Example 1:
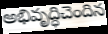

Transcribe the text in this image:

అభివృద్ధిచెందిన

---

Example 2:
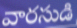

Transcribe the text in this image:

వారసుడి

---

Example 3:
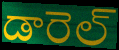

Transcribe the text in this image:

డారెల్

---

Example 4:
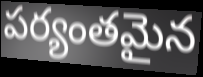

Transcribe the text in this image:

పర్యంతమైన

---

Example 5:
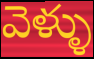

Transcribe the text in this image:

వెళ్ళు